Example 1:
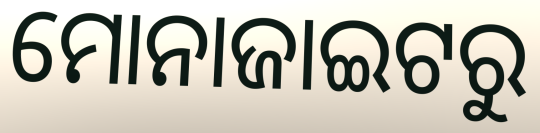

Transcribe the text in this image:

ମୋନାଜାଇଟରୁ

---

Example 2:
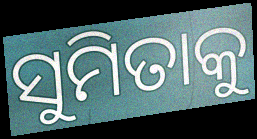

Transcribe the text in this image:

ସୁମିତାକୁ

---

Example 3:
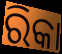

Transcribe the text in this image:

ରିକା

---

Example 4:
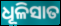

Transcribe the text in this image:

ଧୂଳିସାତ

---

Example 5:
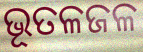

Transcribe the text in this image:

ଭୂତଳଜଳ